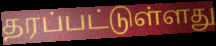
தரப்பட்டுள்ளது